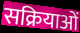
सक्रियाओं